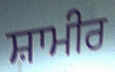
ਸ਼ਾਮੀਰ